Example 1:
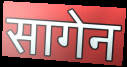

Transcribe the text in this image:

सागेन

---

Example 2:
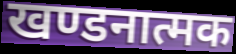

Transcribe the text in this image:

खण्डनात्मक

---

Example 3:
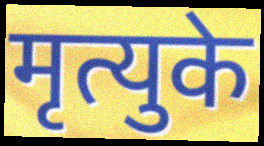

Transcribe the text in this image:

मृत्युके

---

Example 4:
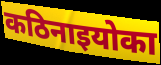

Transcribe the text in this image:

कठिनाइयोका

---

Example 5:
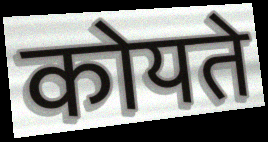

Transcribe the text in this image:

कोयते